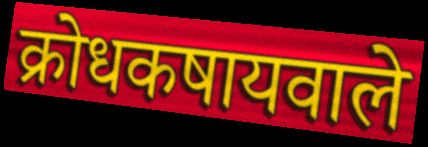
क्रोधकषायवाले